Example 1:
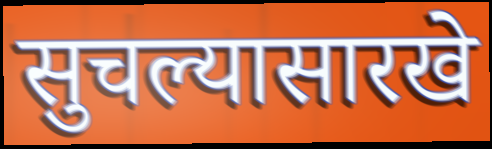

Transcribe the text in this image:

सुचल्यासारखे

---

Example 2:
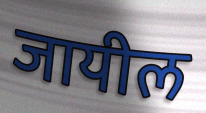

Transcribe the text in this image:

जायील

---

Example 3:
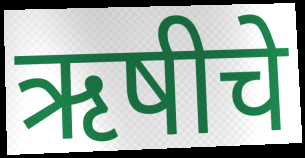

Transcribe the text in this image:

ऋषीचे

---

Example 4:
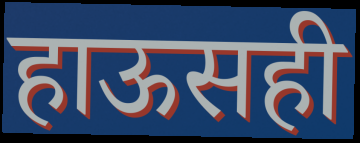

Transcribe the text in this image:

हाऊसही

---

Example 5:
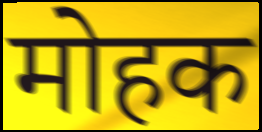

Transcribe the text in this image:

मोहक